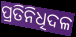
ପ୍ରତିନିଧିଦଳ